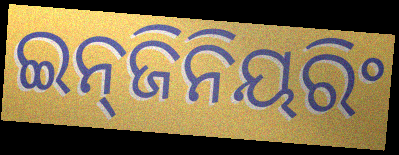
ଇନ୍‍ଜିନିୟରିଂ